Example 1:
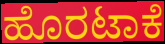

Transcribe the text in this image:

ಹೊರಟಾಕೆ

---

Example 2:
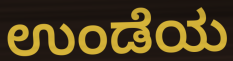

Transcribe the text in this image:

ಉಂಡೆಯ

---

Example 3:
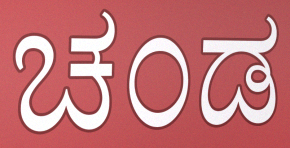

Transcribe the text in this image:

ಚಂಡ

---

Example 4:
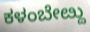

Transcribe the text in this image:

ಕಳಂಬೇೞ್ದು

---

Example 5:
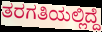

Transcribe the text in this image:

ತರಗತಿಯಲ್ಲಿದ್ದೆ